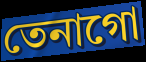
তেনাগো